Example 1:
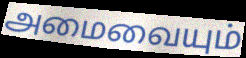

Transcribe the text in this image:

அமைவையும்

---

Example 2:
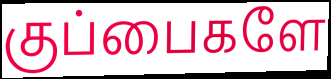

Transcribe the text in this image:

குப்பைகளே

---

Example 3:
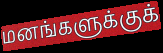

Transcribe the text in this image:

மனங்களுக்குக்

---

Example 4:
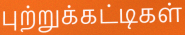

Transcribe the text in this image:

புற்றுக்கட்டிகள்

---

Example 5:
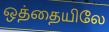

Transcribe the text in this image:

ஒத்தையிலே